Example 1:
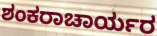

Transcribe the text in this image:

ಶಂಕರಾಚಾರ್ಯರ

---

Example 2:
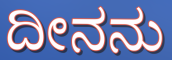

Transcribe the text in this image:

ದೀನನು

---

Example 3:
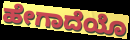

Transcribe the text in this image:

ಹೇಗಾದೆಯೊ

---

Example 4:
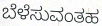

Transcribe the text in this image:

ಬೆಳೆಸುವಂತಹ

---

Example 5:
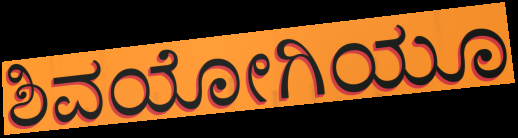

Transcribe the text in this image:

ಶಿವಯೋಗಿಯೂ